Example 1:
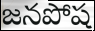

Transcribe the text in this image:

జనపోష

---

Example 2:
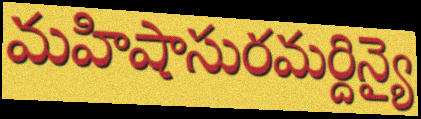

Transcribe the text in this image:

మహిషాసురమర్దిన్యై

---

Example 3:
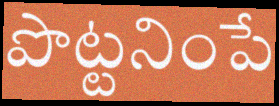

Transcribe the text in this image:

పొట్టనింపే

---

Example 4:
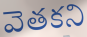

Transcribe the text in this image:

వెతకని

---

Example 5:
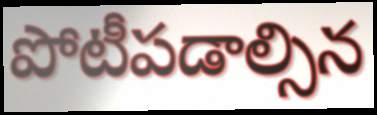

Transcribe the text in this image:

పోటీపడాల్సిన